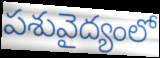
పశువైద్యంలో